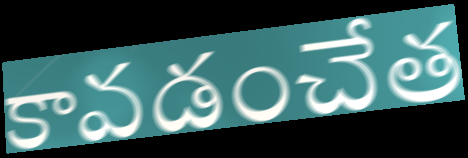
కావడంచేత